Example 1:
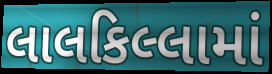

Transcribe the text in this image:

લાલકિલ્લામાં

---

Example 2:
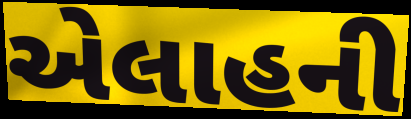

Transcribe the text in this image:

એલાહની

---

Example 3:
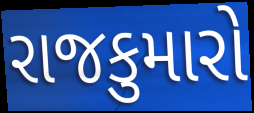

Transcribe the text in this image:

રાજકુમારો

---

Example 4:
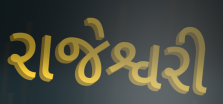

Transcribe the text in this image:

રાજેશ્વરી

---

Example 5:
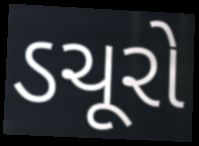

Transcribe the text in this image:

ડચૂરો